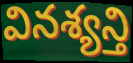
వినశ్యన్తి